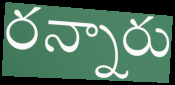
రన్నారు